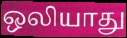
ஒலியாது